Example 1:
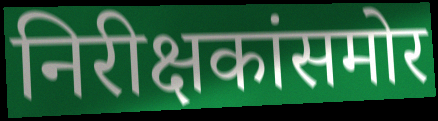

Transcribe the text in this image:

निरीक्षकांसमोर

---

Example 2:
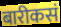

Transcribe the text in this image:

बारीकसं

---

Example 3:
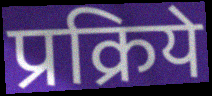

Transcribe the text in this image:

प्रक्रिये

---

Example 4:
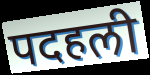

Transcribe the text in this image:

पदहली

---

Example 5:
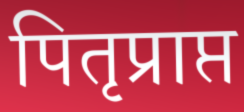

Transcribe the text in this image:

पितृप्राप्त